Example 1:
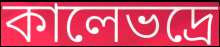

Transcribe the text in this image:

কালেভদ্রে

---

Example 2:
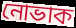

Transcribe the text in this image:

নোভাক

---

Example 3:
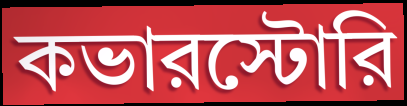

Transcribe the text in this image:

কভারস্টোরি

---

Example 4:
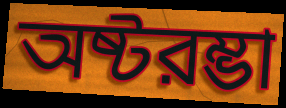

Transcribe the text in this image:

অষ্টরম্ভা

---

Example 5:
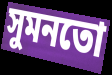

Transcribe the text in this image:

সুমনতো